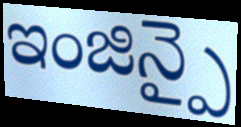
ఇంజిన్పై